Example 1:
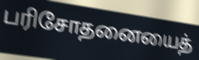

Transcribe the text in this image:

பரிசோதனையைத்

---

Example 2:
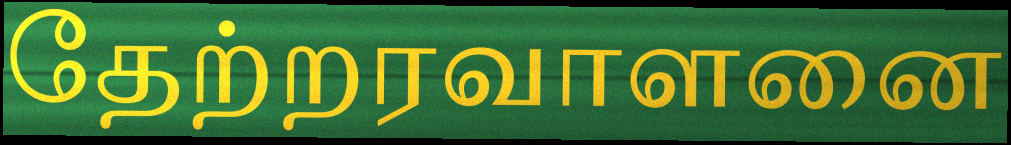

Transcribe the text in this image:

தேற்றரவாளனை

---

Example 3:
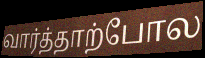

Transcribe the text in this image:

வார்த்தாற்போல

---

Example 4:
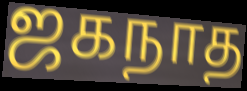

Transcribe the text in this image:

ஜகநாத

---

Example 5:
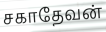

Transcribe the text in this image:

சகாதேவன்